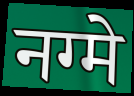
नग्मे